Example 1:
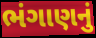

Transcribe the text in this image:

ભંગાણનું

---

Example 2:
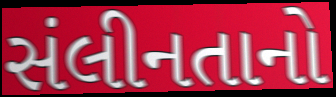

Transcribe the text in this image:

સંલીનતાનો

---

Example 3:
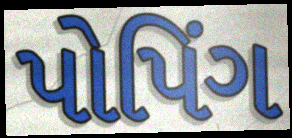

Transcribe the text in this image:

પોપિંગ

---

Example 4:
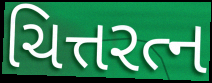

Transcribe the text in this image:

ચિત્તરત્ન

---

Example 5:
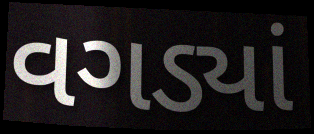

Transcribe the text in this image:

વગડ્યાં